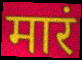
मारं